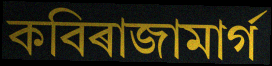
কবিৰাজামাৰ্গ